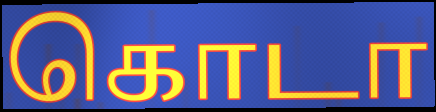
கொடா